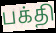
பக்தி